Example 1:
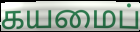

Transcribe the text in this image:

கயமைப்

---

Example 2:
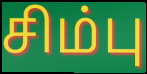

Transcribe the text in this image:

சிம்பு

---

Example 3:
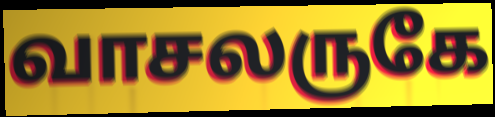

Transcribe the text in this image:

வாசலருகே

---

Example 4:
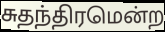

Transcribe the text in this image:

சுதந்திரமென்ற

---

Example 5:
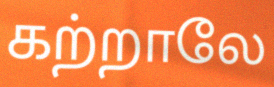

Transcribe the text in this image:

கற்றாலே